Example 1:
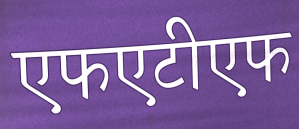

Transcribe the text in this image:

एफएटीएफ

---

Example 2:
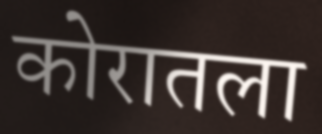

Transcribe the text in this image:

कोरातला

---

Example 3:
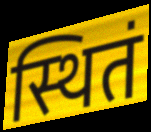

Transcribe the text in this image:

स्थितं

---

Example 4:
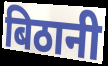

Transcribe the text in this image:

बिठानी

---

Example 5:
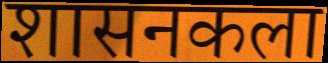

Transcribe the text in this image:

शासनकला